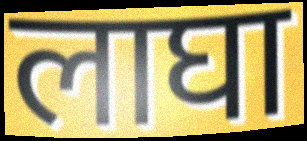
लाघा